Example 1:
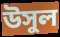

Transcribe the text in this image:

উসুল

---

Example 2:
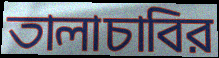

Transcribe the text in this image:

তালাচাবির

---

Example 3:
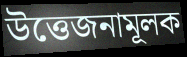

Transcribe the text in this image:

উত্তেজনামূলক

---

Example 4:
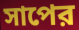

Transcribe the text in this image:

সাপের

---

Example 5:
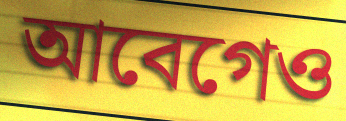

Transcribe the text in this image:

আবেগেও